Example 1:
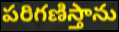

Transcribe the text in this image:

పరిగణిస్తాను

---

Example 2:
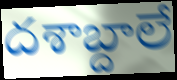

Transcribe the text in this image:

దశాబ్దాలే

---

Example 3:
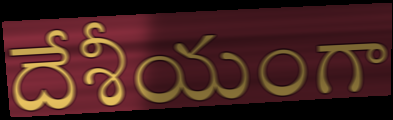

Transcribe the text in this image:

దేశీయంగా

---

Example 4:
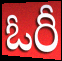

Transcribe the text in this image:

ఓరీ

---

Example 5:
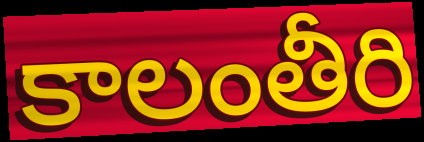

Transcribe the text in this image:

కాలంతీరి